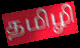
தமிழி